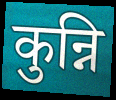
कुन्नि